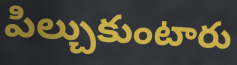
పిల్చుకుంటారు